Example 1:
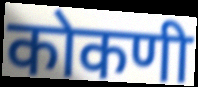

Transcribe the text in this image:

कोकणी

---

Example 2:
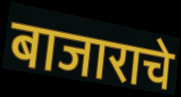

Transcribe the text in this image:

बाजाराचे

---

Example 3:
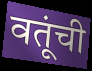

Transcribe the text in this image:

वतूंची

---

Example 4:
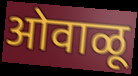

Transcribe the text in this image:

ओवाळू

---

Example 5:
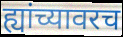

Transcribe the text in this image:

ह्यांच्यावरच